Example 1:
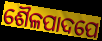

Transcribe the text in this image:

ଶୈଳପାଦପେ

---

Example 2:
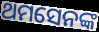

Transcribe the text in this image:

ଥମସେନଙ୍କ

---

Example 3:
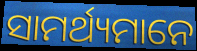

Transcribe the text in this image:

ସାମର୍ଥ୍ୟମାନେ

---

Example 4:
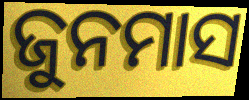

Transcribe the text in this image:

ଜୁନମାସ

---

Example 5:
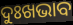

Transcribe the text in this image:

ଦୁଃଖଭାବ